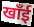
खाँई